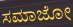
ಸಮಾಜೋ